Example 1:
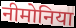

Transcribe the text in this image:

नीमोनिया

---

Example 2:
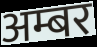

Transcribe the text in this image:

अम्‍बर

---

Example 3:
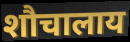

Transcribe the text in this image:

शौचालाय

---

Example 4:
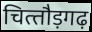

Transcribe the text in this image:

चित्‍तौड़गढ़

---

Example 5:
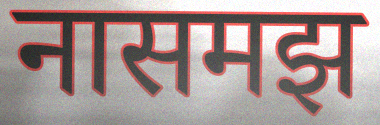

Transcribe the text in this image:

नासमझ